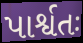
પાર્શ્વતઃ